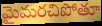
మైమరచిపోతూ